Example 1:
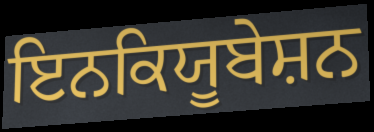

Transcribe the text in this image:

ਇਨਕਿਯੂਬੇਸ਼ਨ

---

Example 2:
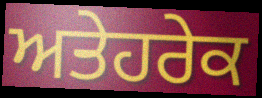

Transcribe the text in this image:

ਅਤੇਹਰੇਕ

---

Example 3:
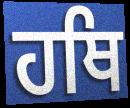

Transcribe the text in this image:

ਹਥਿ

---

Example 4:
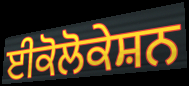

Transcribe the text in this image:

ਈਕੋਲੋਕੇਸ਼ਨ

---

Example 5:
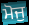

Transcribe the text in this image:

ਮੋਜੁ